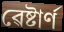
ৱেষ্টাৰ্ণ